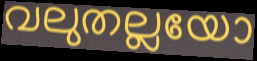
വലുതല്ലയോ